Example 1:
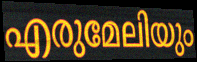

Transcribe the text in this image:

എരുമേലിയും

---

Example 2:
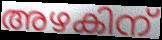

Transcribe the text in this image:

അഴകിന്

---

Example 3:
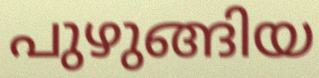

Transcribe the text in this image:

പുഴുങ്ങിയ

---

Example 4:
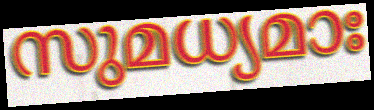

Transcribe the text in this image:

സുമധ്യമാഃ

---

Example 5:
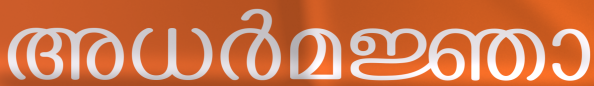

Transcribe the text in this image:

അധർമജ്ഞാ